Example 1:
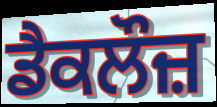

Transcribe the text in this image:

ਡੈਕਲੌਜ਼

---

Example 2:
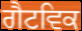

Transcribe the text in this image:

ਗੈਟਵਿਕ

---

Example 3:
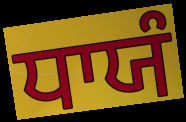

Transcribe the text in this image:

ਧਾਯੰ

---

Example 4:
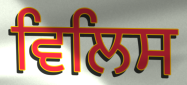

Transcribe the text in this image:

ਵਿਲਿਸ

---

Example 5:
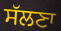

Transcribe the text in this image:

ਸੱਲਣਾ